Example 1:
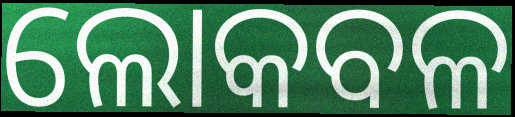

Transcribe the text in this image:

ଲୋକବଳ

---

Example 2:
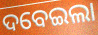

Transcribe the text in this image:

ଦବେଇଲା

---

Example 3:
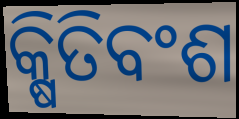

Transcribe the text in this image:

କ୍ଷିତିବଂଶ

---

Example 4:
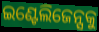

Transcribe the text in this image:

ଇଣ୍ଟେଲିଜେନ୍ସକୁ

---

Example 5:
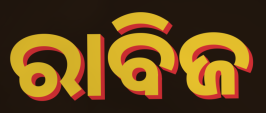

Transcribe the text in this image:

ରାବିଜ